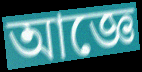
আজ্ঞে